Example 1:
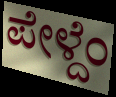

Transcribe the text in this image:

ಪೇಳ್ದೆಂ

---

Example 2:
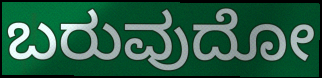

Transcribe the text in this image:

ಬರುವುದೋ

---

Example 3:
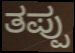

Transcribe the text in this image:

ತಪ್ಪು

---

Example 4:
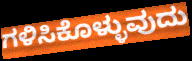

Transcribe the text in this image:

ಗಳಿಸಿಕೊಳ್ಳುವುದು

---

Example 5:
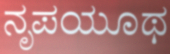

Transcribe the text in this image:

ನೃಪಯೂಥ